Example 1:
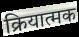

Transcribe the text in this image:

क्रियात्‍मक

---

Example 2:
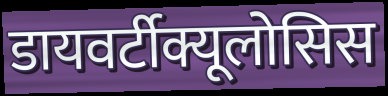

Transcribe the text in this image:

डायवर्टीक्यूलोसिस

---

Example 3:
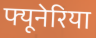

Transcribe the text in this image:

फ्यूनेरिया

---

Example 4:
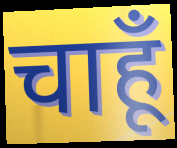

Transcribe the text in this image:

चाहूँ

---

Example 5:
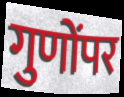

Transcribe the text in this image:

गुणोंपर